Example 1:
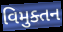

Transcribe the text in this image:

વિમુક્તન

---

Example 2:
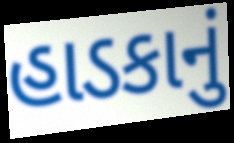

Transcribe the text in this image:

હાડકાનું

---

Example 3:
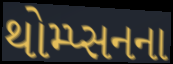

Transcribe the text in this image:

થોમ્પ્સનના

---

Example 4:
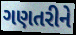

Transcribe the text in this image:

ગણતરીને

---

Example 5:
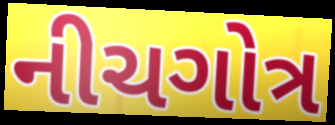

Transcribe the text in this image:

નીચગોત્ર